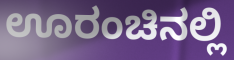
ಊರಂಚಿನಲ್ಲಿ